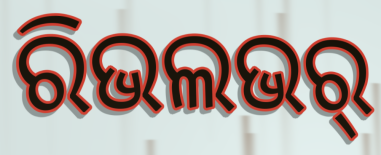
ରିଭଲଭର୍